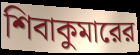
শিবাকুমারের